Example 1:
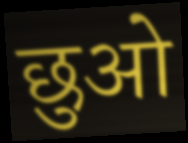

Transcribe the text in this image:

छुओ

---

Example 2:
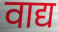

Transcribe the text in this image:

वाद्य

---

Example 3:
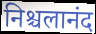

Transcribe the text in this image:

निश्चलानंद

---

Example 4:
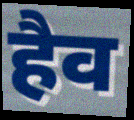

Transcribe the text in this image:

हैव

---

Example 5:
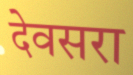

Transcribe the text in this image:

देवसरा